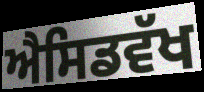
ਐਸਿਡਵੱਖ